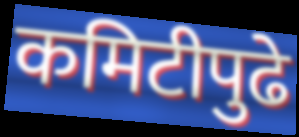
कमिटीपुढे